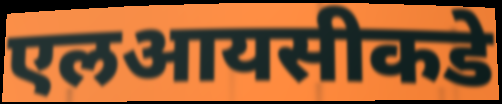
एलआयसीकडे